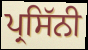
ਪ੍ਰਸਿੱਨੀ